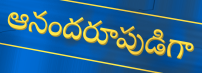
ఆనందరూపుడిగా